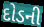
દોડની